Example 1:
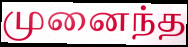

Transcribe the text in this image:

முனைந்த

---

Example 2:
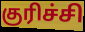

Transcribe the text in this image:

குரிச்சி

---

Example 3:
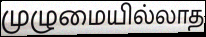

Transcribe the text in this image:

முழுமையில்லாத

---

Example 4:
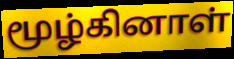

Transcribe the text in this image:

மூழ்கினாள்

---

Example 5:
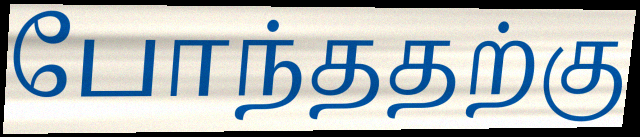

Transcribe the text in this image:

போந்ததற்கு